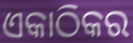
ଏକାଠିକର